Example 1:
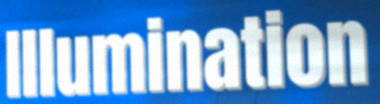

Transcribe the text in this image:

Illumination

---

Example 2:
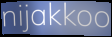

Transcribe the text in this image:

nijakkoo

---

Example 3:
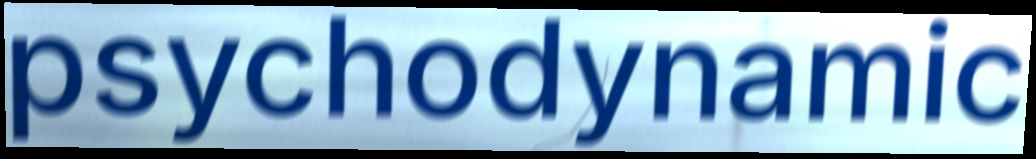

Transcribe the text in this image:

psychodynamic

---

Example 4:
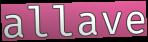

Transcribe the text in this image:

allave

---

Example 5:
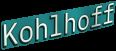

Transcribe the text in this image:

Kohlhoff